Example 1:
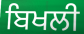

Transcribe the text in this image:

ਬਿਖਲੀ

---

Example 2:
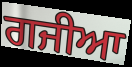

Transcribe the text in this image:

ਗਜੀਆ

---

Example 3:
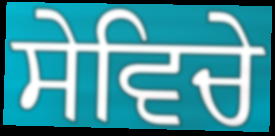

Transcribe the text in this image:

ਸੇਵਿਚੇ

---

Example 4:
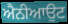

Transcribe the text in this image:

ਐਨੀਆਉਟ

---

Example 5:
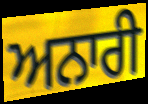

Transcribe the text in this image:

ਅਨਾਰੀ